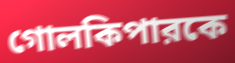
গোলকিপারকে